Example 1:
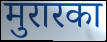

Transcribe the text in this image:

मुरारका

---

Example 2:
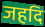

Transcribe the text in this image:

जहदि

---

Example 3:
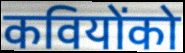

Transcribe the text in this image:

कवियोंको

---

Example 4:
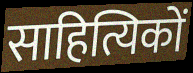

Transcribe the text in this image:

साहित्यिकों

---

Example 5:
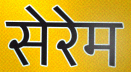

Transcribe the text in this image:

सेरेम